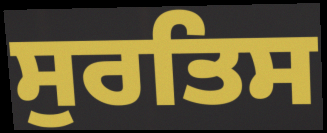
ਸੁਰਤਿਸ